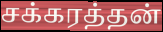
சக்கரத்தன்